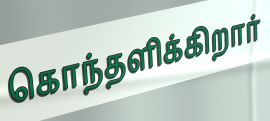
கொந்தளிக்கிறார்